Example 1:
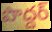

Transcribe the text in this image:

పొద్దర్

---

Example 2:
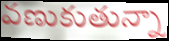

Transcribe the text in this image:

వణుకుతున్నా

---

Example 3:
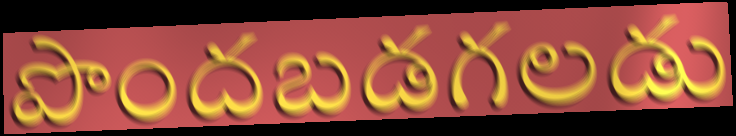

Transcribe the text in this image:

పొందబడగలడు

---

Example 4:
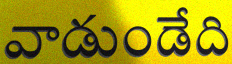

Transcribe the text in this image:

వాడుండేది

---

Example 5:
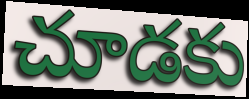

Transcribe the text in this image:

చూడకు